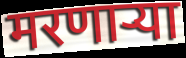
मरणार्‍या